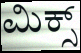
ಮಿಕ್ಸ್